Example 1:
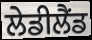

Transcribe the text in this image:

ਲੇਡੀਲੈਂਡ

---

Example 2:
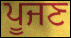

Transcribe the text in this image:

ਪੂਜਣ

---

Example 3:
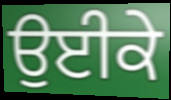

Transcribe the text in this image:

ਉਈਕੇ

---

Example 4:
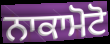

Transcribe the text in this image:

ਨਾਕਾਮੋਟੋ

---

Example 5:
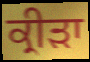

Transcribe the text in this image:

ਕ੍ਰੀੜਾ